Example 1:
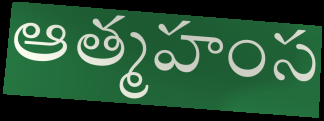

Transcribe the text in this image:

ఆత్మహంస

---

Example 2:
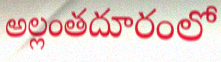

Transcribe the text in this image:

అల్లంతదూరంలో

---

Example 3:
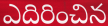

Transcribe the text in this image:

ఎదిరించిన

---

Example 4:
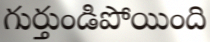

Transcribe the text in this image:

గుర్తుండిపోయింది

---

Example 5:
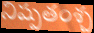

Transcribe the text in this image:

నిష్పతంశ్చ